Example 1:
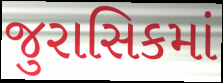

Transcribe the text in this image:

જુરાસિકમાં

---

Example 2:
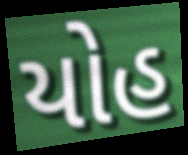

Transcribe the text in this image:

યોહ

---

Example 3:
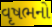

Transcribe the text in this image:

વૃષભનો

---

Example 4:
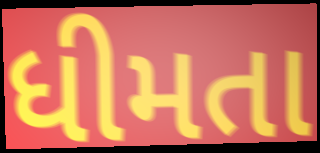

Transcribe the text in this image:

ધીમતા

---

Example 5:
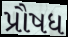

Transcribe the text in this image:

પ્રૌષધ